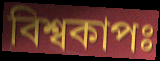
বিশ্বকাপঃ